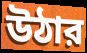
উঠার